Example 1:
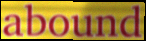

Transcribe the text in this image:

abound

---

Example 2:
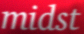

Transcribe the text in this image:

midst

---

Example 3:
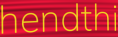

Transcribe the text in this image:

hendthi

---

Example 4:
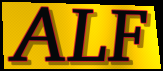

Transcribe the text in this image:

ALF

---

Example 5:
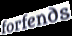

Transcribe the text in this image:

forfends